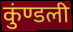
कुंण्डली